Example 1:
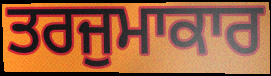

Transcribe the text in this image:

ਤਰਜੁਮਾਕਾਰ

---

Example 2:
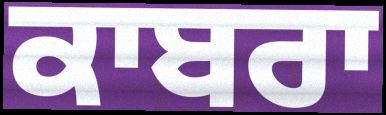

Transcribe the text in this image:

ਕਾਬਰਾ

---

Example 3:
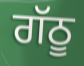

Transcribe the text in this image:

ਗੱਠੂ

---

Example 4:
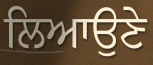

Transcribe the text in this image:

ਲਿਆਉਣੇ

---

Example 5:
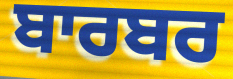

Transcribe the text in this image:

ਬਾਰਬਰ